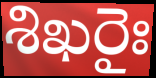
శిఖరైః